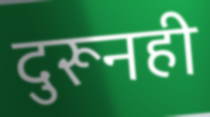
दुरूनही